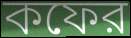
কফের